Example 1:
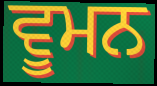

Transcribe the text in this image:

ਵੂਮਨ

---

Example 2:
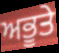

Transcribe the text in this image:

ਅਭੂਤੇ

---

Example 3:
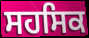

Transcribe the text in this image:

ਸਹਸਿਕ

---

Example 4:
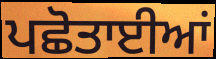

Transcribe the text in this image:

ਪਛੋਤਾਈਆਂ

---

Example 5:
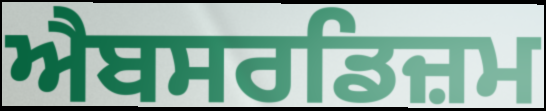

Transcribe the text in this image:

ਐਬਸਰਡਿਜ਼ਮ